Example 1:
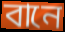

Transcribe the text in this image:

বানে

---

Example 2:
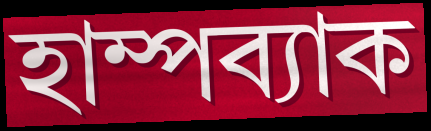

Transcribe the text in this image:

হাম্পব্যাক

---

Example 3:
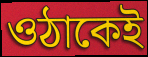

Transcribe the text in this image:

ওঠাকেই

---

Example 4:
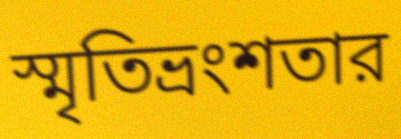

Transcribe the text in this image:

স্মৃতিভ্রংশতার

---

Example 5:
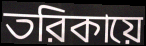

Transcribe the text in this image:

তরিকায়ে